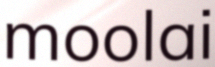
moolai